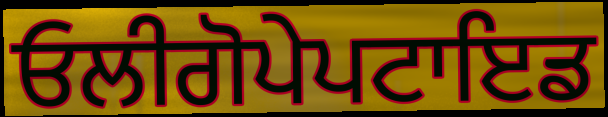
ਓਲੀਗੋਪੇਪਟਾਇਡ